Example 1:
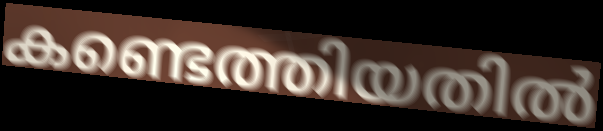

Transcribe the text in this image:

കണ്ടെത്തിയതിൽ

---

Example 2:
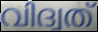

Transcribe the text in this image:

വിദ്വത്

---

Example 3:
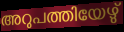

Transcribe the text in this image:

അറുപത്തിയേഴു്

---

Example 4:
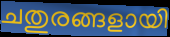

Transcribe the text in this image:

ചതുരങ്ങളായി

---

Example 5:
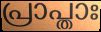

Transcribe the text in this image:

പ്രാപ്താഃ